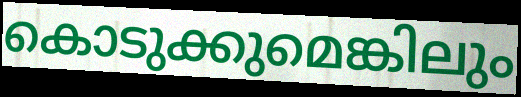
കൊടുക്കുമെങ്കിലും